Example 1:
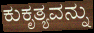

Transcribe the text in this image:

ಕುಕೃತ್ಯವನ್ನು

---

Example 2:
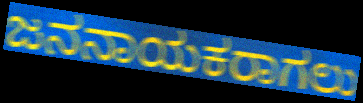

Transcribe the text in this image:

ಜನನಾಯಕರಾಗಲು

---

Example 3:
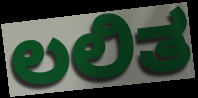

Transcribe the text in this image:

ಲಲಿತ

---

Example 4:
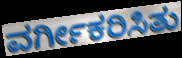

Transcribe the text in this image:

ವರ್ಗೀಕರಿಸಿತು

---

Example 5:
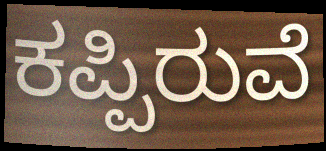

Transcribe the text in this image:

ಕಪ್ಪಿರುವೆ